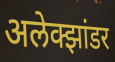
अलेक्झांडर